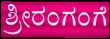
ಶ್ರೀರಂಗಂಗೆ